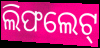
ଲିଫଲେଟ୍